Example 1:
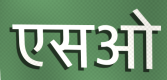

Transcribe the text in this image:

एसओ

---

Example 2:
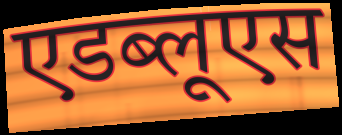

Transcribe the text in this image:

एडब्लूएस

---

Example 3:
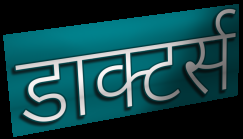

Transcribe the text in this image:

डाक्टर्स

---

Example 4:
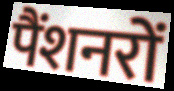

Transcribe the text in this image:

पैंशनरों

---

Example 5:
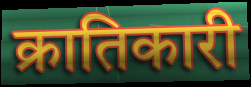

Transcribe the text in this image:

क्रातिकारी